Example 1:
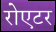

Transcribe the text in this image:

रोएटर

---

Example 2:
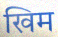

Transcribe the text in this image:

खिम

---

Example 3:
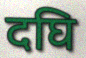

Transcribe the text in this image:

दघि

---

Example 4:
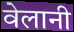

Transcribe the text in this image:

वेलानी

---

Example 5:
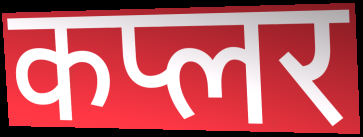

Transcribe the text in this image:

कप्लर